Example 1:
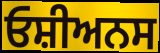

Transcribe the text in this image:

ਓਸ਼ੀਅਨਸ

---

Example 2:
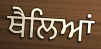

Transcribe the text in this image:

ਥੈਲਿਆਂ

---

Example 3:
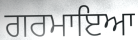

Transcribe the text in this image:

ਗਰਮਾਇਆ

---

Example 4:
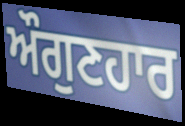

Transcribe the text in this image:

ਔਗੁਣਹਾਰ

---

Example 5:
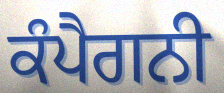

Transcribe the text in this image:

ਕੰਪੈਗਨੀ